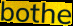
bothe